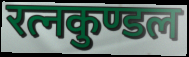
रत्नकुण्डल